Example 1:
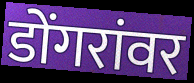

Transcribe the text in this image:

डोंगरांवर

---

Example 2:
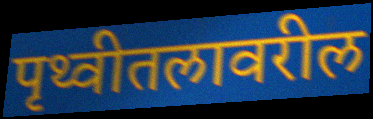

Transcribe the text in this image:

पृथ्वीतलावरील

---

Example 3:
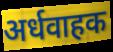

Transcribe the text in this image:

अर्धवाहक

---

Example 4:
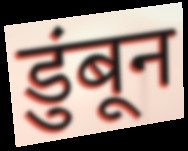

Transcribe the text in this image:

डुंबून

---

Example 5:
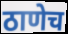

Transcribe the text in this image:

ठाणेच